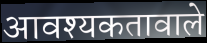
आवश्यकतावाले